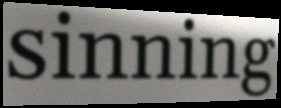
sinning